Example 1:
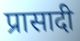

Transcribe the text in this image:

प्रासादी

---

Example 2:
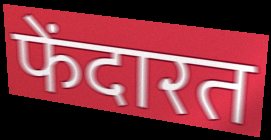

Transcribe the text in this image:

फेंदारत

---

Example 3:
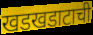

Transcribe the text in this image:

खडखडाटाची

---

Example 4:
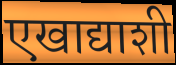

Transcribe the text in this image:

एखाद्याशी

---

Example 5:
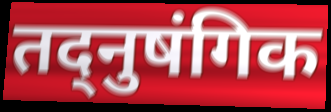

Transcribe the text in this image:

तद्नुषंगिक